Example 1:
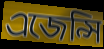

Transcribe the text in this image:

এজেন্সি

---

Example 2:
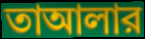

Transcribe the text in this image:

তাআলার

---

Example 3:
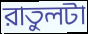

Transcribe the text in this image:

রাতুলটা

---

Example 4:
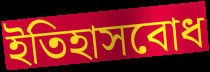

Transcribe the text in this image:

ইতিহাসবোধ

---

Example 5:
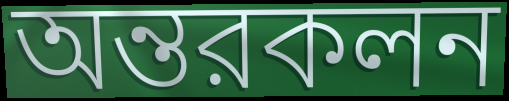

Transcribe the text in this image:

অন্তরকলন